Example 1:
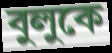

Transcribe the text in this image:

বুলুকে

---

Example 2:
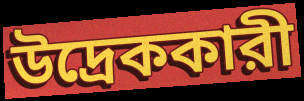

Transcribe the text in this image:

উদ্রেককারী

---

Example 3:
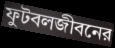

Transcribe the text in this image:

ফুটবলজীবনের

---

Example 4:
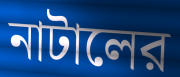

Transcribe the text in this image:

নাটালের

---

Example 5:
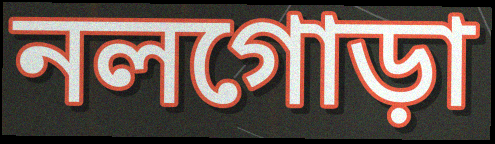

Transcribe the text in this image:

নলগোড়া